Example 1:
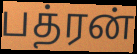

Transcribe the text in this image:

பத்ரன்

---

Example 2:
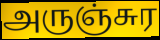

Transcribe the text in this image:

அருஞ்சுர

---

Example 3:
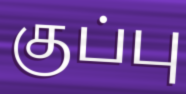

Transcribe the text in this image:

குப்பு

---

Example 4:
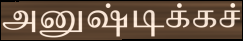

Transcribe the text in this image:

அனுஷ்டிக்கச்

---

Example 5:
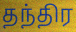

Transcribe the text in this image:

தந்திர